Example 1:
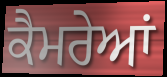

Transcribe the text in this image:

ਕੈਮਰੇਆਂ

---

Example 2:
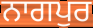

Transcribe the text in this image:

ਨਾਗਪੁਰ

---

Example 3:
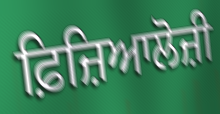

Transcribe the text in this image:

ਫ਼ਿਜ਼ਿਆਲੋਜ਼ੀ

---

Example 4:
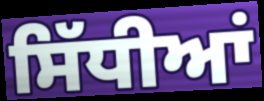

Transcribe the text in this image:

ਸਿੱਧੀਆਂ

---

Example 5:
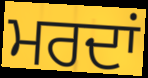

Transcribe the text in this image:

ਮਰਦਾਂ